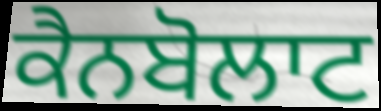
ਕੈਨਬੋਲਾਟ